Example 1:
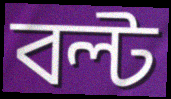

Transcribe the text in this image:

বল্ট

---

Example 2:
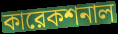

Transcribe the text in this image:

কারেকশনাল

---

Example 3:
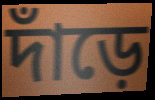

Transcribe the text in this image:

দাঁড়ে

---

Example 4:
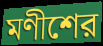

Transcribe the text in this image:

মণীশের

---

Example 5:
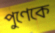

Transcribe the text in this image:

পুণেকে